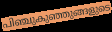
പിഞ്ചുകുഞ്ഞുങ്ങളുടെ